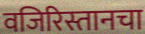
वजिरिस्तानचा